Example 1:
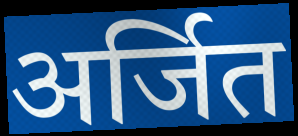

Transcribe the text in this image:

अर्जित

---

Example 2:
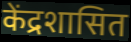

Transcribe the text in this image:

केंद्रशासित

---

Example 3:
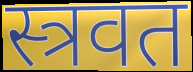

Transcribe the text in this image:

स्त्रवत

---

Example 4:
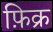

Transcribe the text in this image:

फ़िक्र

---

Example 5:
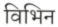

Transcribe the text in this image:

विभिन